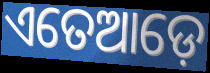
ଏତେଆଡ଼େ